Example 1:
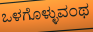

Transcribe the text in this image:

ಒಳಗೊಳ್ಳುವಂಥ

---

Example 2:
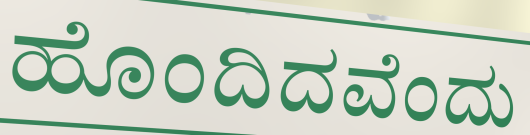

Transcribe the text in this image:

ಹೊಂದಿದವೆಂದು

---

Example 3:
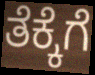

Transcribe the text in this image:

ತೆಕ್ಕೆಗೆ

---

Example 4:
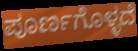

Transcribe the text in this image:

ಪೂರ್ಣಗೊಳ್ಳದೆ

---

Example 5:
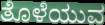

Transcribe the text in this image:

ತೊಳೆಯುವ